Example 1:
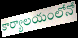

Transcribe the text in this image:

కార్యాలయంలోనో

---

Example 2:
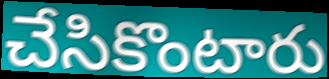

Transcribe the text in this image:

చేసికొంటారు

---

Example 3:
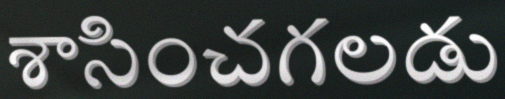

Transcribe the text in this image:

శాసించగలడు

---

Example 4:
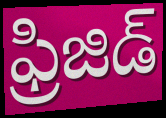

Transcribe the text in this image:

ఫ్రిజిడ్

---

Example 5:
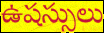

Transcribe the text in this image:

ఉషస్సులు